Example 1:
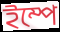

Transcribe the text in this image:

ইম্পে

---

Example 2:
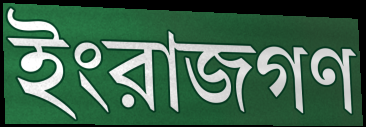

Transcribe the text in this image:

ইংরাজগণ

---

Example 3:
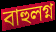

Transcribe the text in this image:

বাহুলগ্ন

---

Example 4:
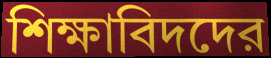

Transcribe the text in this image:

শিক্ষাবিদদের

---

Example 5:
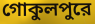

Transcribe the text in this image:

গোকুলপুরে